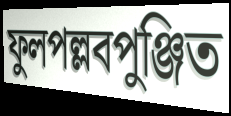
ফুলপল্লবপুঞ্জিত